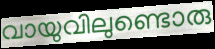
വായുവിലുണ്ടൊരു